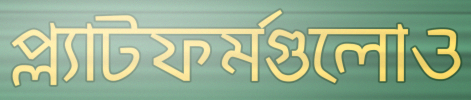
প্ল্যাটফর্মগুলোও